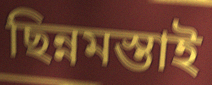
ছিন্নমস্তাই